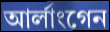
আৰ্লাংগেন